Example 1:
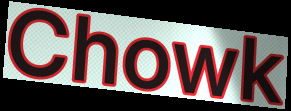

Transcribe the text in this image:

Chowk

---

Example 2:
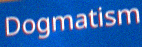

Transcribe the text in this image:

Dogmatism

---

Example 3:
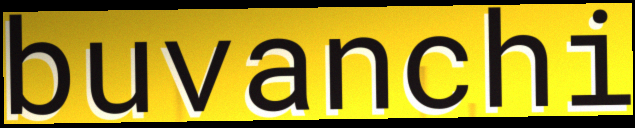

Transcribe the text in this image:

buvanchi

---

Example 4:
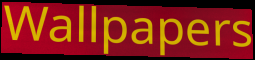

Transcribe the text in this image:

Wallpapers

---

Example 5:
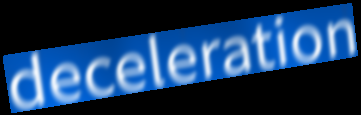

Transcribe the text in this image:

deceleration